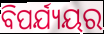
ବିପର୍ଯ୍ୟୟର